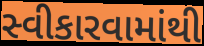
સ્વીકારવામાંથી